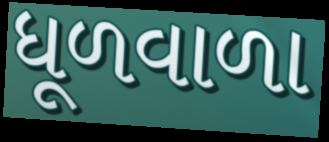
ધૂળવાળા